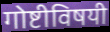
गोष्टीविषयी